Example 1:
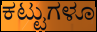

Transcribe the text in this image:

ಕಟ್ಟುಗಳೂ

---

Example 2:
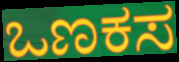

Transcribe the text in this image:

ಒಣಕಸ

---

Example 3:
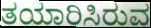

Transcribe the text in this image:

ತಯಾರಿಸಿರುವ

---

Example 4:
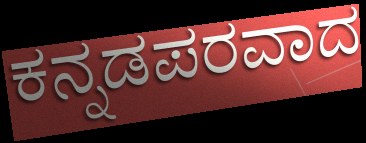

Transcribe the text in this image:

ಕನ್ನಡಪರವಾದ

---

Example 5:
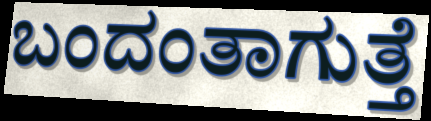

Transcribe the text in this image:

ಬಂದಂತಾಗುತ್ತೆ